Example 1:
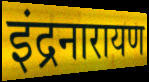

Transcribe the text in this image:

इंद्रनारायण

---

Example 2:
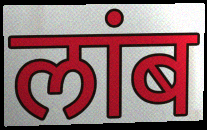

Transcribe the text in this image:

लांब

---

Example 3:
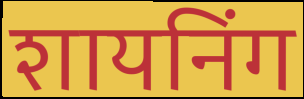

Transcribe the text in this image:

शायनिंग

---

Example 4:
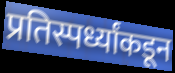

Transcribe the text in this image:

प्रतिस्पर्ध्यांकडून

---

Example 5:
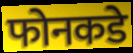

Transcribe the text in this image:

फोनकडे